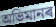
অভিমানৰ